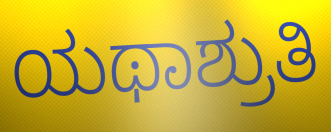
ಯಥಾಶ್ರುತಿ